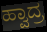
ಹ್ವಾದ್ರ